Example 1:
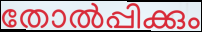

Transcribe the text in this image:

തോൽപ്പിക്കും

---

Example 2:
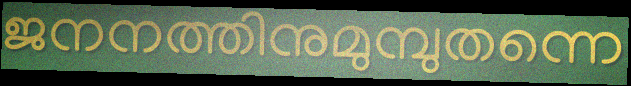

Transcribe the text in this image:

ജനനത്തിനുമുമ്പുതന്നെ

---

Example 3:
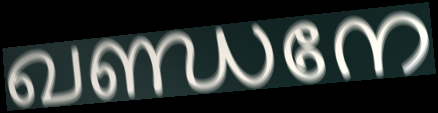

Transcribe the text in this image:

ഖണ്ഡനേ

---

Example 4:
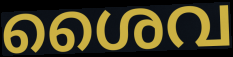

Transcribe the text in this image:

ശൈവ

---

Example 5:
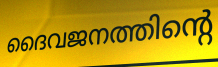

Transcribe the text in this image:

ദൈവജനത്തിന്റെ